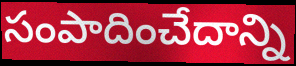
సంపాదించేదాన్ని